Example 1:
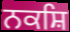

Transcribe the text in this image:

ਨਕਸ਼ਿ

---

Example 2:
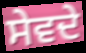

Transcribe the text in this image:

ਸੇਵਦੇ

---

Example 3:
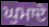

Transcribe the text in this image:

ਘੁਮਾਦੇ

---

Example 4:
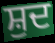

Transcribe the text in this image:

ਸ਼ੁਦ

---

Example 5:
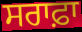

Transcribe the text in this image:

ਸਰਾਫ਼ਾ